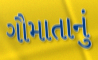
ગૌમાતાનું